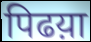
पिढय़ा